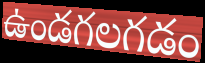
ఉండగలగడం